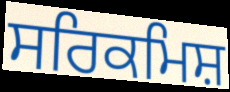
ਸਰਿਕਮਿਸ਼